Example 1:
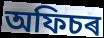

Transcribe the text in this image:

অফিচৰ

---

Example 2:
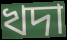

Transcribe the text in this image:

খদা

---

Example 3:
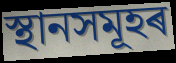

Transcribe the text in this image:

স্থানসমূহৰ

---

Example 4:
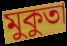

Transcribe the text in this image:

মুকুতা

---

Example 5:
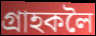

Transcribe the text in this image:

গ্ৰাহকলৈ